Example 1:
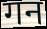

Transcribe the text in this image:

गन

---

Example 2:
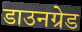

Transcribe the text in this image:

डाउनग्रेड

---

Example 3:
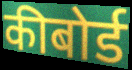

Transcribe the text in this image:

कीबोर्ड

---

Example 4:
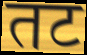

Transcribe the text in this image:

तट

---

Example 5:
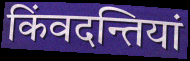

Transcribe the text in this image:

किंवदन्तियां